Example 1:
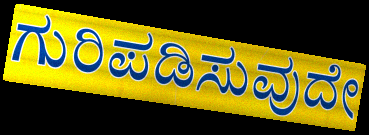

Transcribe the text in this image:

ಗುರಿಪಡಿಸುವುದೇ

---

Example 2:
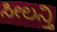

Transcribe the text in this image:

ಸೀಲನ್ತಿ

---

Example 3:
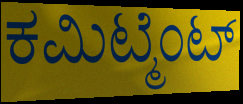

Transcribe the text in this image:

ಕಮಿಟ್ಮೆಂಟ್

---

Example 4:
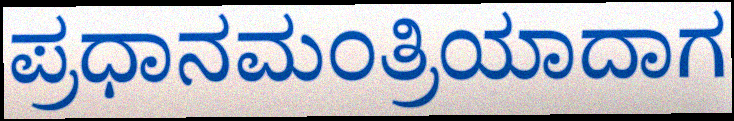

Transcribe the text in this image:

ಪ್ರಧಾನಮಂತ್ರಿಯಾದಾಗ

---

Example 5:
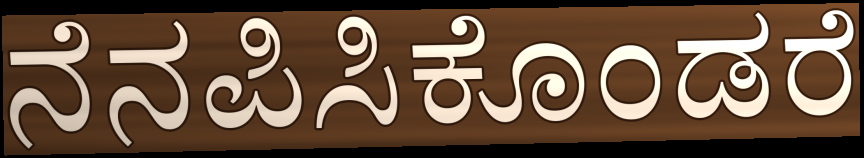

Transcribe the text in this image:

ನೆನಪಿಸಿಕೊಂಡರೆ